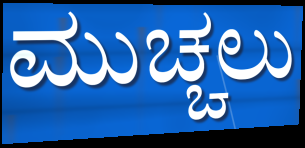
ಮುಚ್ಚಲು